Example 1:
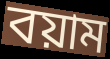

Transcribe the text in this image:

বয়াম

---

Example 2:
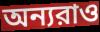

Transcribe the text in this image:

অন্যরাও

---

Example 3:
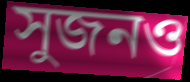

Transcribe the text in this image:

সুজনও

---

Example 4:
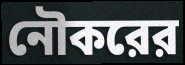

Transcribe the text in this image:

নৌকরের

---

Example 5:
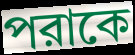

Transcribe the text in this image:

পরাকে